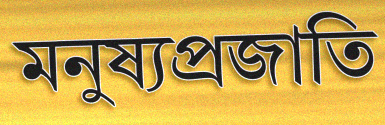
মনুষ্যপ্রজাতি